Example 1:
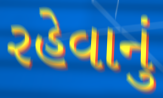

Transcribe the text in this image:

રહેવાનું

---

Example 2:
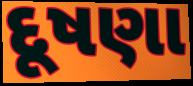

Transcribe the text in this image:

દૂષણા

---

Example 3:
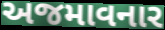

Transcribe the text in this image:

અજમાવનાર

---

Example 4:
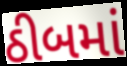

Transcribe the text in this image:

ઠીબમાં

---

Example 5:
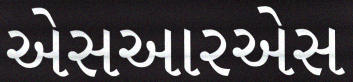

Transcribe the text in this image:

એસઆરએસ